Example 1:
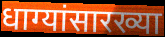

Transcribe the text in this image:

धाग्यांसारख्या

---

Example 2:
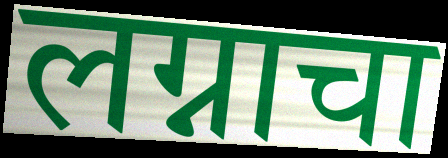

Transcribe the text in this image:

लग्नाचा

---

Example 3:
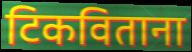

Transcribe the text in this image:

टिकविताना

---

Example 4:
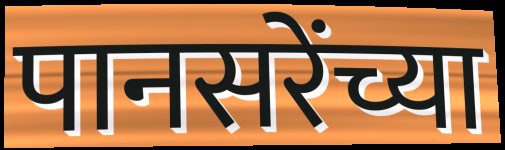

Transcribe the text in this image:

पानसरेंच्या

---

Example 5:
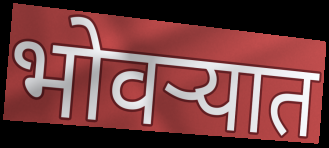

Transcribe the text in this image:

भोवऱ्यात